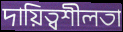
দায়িত্বশীলতা